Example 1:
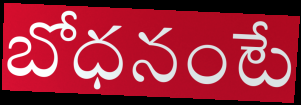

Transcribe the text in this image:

బోధనంటే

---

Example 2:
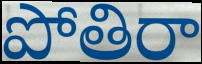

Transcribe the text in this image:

పోతిరా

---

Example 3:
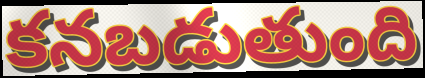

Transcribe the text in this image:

కనబడుతుంది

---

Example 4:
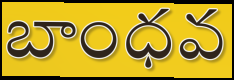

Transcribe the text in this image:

బాంధవ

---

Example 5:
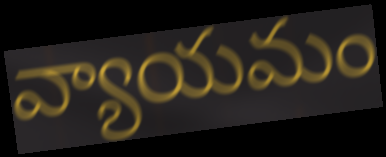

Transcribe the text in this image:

వ్యాయమం